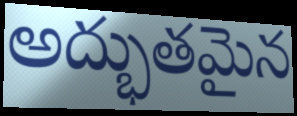
అద్భుతమైన